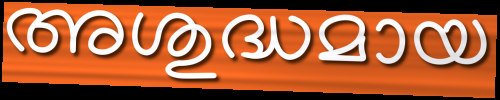
അശുദ്ധമായ